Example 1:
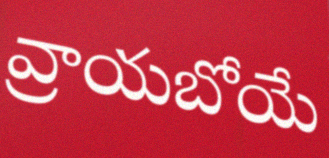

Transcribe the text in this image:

వ్రాయబోయే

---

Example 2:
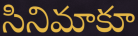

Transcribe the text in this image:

సినిమాకూ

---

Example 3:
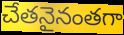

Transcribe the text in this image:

చేతనైనంతగా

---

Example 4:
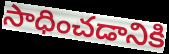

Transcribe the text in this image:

సాధించడానికి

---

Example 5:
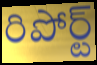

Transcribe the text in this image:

రిపోర్ట్